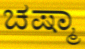
ಚಷ್ಮಾ